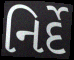
નિર્દે